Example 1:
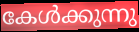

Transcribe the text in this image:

കേൾക്കുന്നു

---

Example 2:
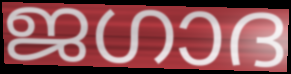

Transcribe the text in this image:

ജഗാദ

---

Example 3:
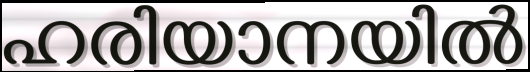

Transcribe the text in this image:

ഹരിയാനയിൽ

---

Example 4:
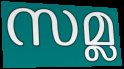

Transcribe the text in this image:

സമ്ല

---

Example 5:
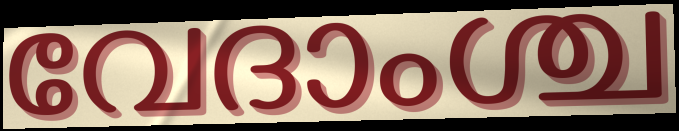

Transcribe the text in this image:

വേദാംശ്ച